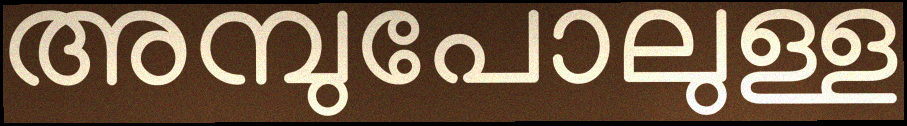
അമ്പുപോലുള്ള